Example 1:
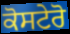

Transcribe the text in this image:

ਕੋਸਟੇਰੋ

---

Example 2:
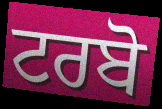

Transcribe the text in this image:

ਟਰਬੋ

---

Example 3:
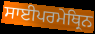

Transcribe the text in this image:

ਸਾਈਪਰਮੇਥ੍ਰਿਨ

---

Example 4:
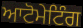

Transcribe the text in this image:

ਆਟੋਮੇਟਿੰਗ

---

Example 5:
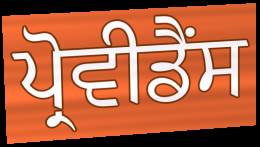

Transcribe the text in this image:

ਪ੍ਰੋਵੀਡੈਂਸ